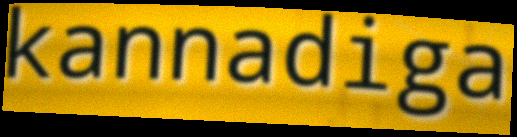
kannadiga